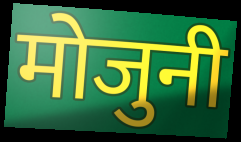
मोजुनी